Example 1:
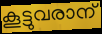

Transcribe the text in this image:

കൂട്ടുവരാന്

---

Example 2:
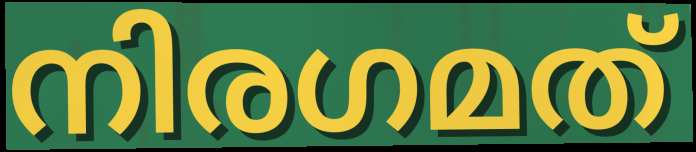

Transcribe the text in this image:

നിരഗമത്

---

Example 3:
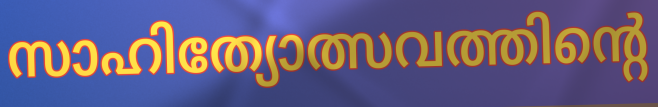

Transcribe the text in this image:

സാഹിത്യോത്സവത്തിന്റെ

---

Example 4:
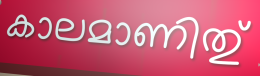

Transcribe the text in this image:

കാലമാണിതു്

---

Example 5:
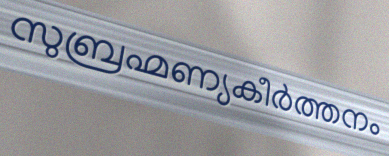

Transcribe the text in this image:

സുബ്രഹ്മണ്യകീർത്തനം